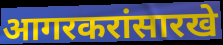
आगरकरांसारखे